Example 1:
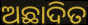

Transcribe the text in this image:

ଅଛାଦିତ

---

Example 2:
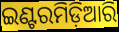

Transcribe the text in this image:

ଇଣ୍ଟରମିଡ଼ିଆରି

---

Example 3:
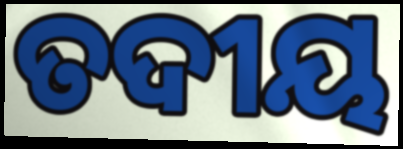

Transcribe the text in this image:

ତଦୀୟ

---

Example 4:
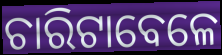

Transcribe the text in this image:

ଚାରିଟାବେଳେ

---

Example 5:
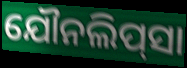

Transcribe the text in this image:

ଯୌନଲିପ୍‌ସା